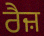
ਰੈਜ਼